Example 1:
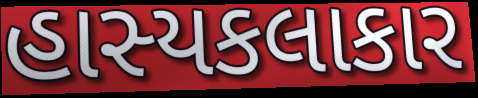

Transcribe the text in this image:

હાસ્યકલાકાર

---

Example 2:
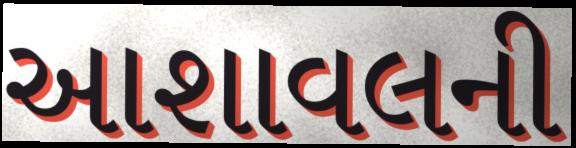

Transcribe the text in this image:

આશાવલની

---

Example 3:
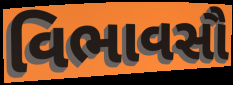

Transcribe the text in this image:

વિભાવસૌ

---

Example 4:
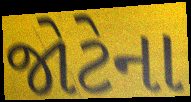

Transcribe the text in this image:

જોટેના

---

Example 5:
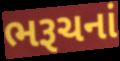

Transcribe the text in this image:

ભરૂચનાં